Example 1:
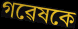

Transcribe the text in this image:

গৱেষকে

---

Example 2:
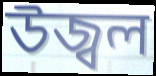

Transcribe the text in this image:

উজ্বল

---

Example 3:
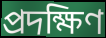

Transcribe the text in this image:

প্ৰদক্ষিণ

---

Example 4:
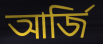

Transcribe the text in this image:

আৰ্জি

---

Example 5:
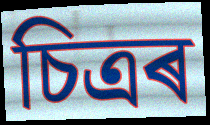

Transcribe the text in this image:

চিত্ৰৰ